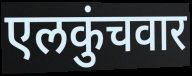
एलकुंचवार